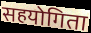
सहयोगिता